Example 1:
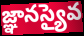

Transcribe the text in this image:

జ్ఞానస్యైవ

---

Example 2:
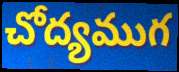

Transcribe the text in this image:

చోద్యముగ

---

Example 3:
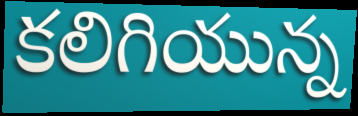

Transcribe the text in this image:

కలిగియున్న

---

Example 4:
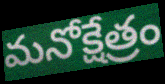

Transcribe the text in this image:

మనోక్షేత్రం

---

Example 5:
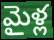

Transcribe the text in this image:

మైళ్ల